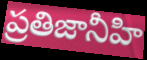
ప్రతిజానీహి